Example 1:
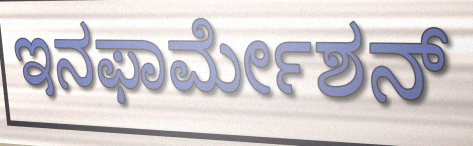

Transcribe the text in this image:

ಇನಫಾರ್ಮೇಶನ್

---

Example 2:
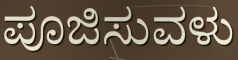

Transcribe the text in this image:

ಪೂಜಿಸುವಳು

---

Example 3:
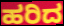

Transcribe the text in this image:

ಹರಿದ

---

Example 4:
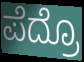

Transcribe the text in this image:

ಪೆದ್ರೊ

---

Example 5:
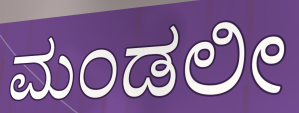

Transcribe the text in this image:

ಮಂಡಲೀ